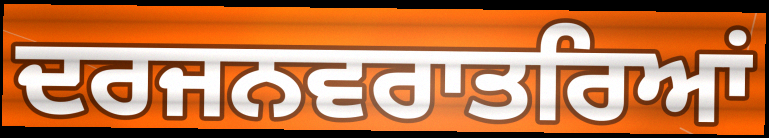
ਦਰਜਨਵਰਾਤਰਿਆਂ